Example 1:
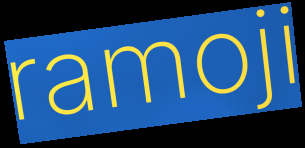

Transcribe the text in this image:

ramoji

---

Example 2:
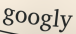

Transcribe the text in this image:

googly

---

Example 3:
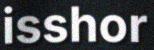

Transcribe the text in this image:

isshor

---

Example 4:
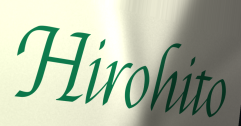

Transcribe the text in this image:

Hirohito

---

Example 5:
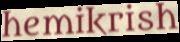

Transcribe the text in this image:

hemikrish